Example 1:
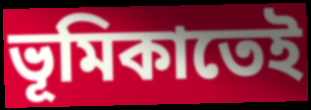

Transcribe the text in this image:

ভূমিকাতেই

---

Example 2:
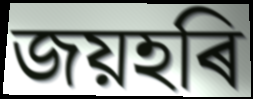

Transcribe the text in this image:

জয়হৰি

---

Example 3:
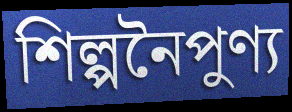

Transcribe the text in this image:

শিল্পনৈপুণ্য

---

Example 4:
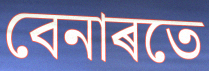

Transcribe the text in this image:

বেনাৰতে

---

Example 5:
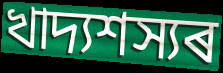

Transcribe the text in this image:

খাদ্যশস্যৰ